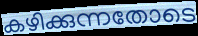
കഴിക്കുന്നതോടെ